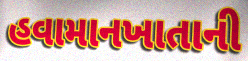
હવામાનખાતાની